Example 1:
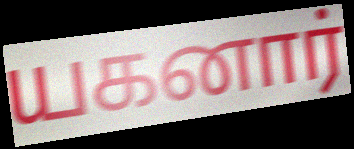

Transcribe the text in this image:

யகனார்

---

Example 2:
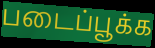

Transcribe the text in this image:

படைப்பூக்க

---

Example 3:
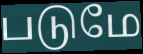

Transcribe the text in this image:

படுமே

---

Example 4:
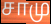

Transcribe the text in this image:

சாமு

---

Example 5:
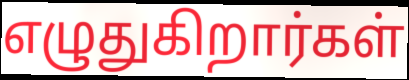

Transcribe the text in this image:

எழுதுகிறார்கள்